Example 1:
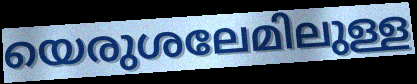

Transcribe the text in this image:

യെരുശലേമിലുള്ള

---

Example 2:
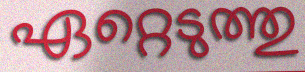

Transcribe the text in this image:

ഏറ്റെടുത്തു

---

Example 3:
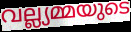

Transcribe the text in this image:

വല്ല്യമ്മയുടെ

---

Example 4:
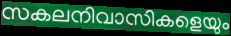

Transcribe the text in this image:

സകലനിവാസികളെയും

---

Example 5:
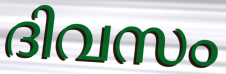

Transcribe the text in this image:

ദിവസം